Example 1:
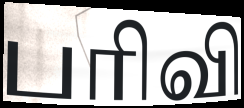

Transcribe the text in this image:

பரிவி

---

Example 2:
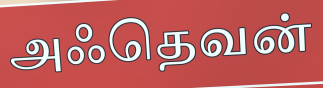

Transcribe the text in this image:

அஃதெவன்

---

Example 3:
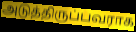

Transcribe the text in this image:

அடுத்திருப்பவராக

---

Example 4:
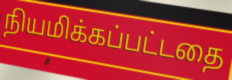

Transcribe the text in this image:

நியமிக்கப்பட்டதை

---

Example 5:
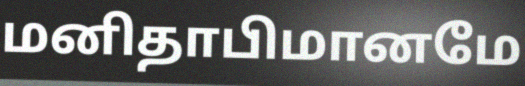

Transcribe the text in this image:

மனிதாபிமானமே